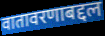
वातावरणाबद्दल